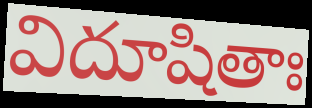
విదూషితాః